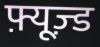
फ़्यूज़्ड